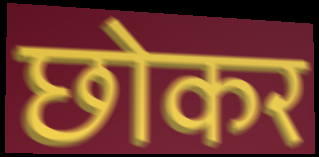
छोकर